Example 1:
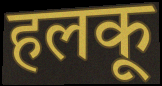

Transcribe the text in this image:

हलकू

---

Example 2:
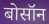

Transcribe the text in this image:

बोसॉन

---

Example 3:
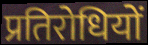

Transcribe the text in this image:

प्रतिरोधियों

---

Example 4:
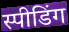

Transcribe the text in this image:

स्‍पीडिंग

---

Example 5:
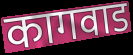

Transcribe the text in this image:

कागवाड